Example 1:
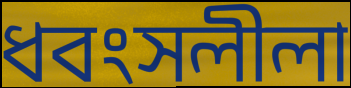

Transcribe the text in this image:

ধবংসলীলা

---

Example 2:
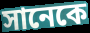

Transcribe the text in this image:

সানেকে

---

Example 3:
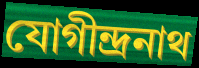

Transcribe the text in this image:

যোগীন্দ্রনাথ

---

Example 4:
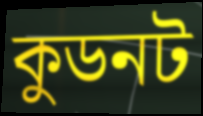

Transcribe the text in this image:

কুডনট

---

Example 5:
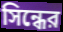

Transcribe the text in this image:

সিন্ধের